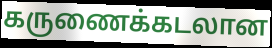
கருணைக்கடலான